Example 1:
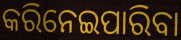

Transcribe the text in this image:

କରିନେଇପାରିବା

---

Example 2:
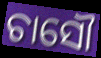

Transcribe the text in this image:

ଚାସୌ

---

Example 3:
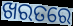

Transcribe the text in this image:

ଖରତରେ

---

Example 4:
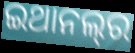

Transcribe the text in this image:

ଇଥାନଲ୍‌ର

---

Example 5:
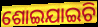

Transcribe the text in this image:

ଶୋଇଯାଇଚି